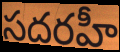
సదరహీ